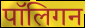
पॉलिगन